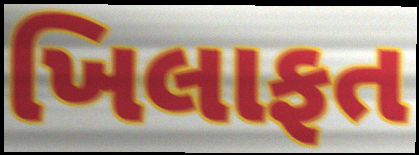
ખિલાફત